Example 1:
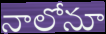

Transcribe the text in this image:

నాలోనూ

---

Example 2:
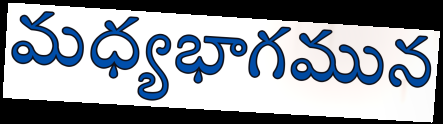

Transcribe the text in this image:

మధ్యభాగమున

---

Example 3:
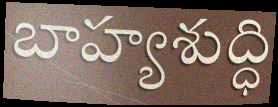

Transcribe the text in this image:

బాహ్యశుద్ధి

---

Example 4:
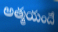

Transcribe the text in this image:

అత్మయందే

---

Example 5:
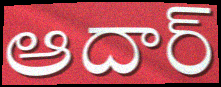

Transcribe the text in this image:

ఆదార్